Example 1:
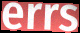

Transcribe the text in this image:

errs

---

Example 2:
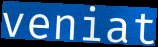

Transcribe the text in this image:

veniat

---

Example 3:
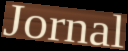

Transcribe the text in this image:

Jornal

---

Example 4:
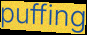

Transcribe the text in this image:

puffing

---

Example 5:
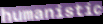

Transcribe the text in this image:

humanistic